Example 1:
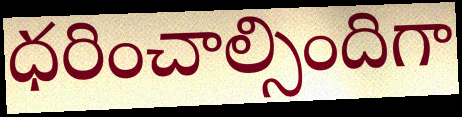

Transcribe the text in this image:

ధరించాల్సిందిగా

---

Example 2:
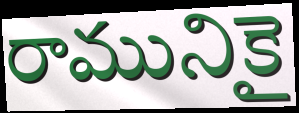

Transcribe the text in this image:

రామునికై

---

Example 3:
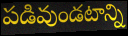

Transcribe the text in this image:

పడివుండటాన్ని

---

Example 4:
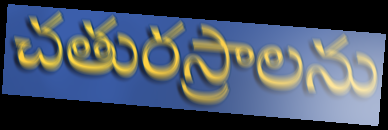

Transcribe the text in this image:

చతురస్రాలను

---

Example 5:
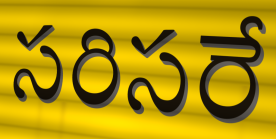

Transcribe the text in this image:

సరిసరే